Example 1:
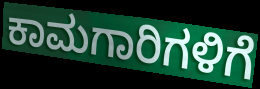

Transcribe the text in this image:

ಕಾಮಗಾರಿಗಳಿಗೆ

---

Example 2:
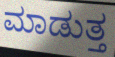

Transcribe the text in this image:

ಮಾಡುತ್ತ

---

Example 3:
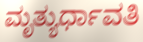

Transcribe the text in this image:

ಮೃತ್ಯುರ್ಧಾವತಿ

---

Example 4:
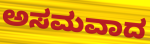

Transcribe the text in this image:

ಅಸಮವಾದ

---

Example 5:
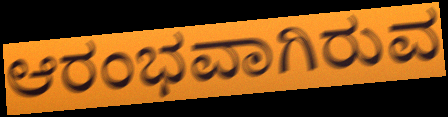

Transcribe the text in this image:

ಆರಂಭವಾಗಿರುವ